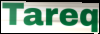
Tareq